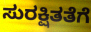
ಸುರಕ್ಷಿತತೆಗೆ